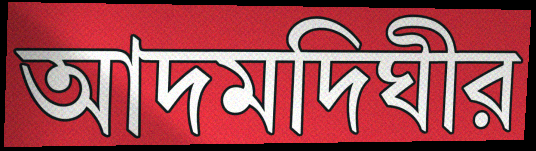
আদমদিঘীর